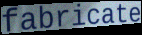
fabricate